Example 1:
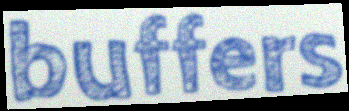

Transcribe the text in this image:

buffers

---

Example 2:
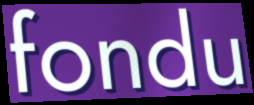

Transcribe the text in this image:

fondu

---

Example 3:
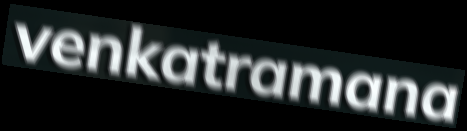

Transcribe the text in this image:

venkatramana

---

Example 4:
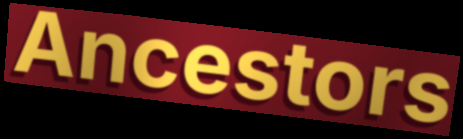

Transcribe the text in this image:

Ancestors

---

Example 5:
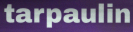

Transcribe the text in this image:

tarpaulin